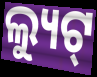
ଲ୍ୟୁଟ୍